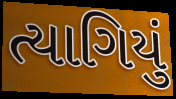
ત્યાગિયું